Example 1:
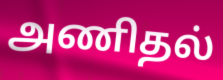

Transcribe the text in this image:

அணிதல்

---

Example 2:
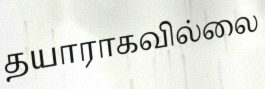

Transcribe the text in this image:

தயாராகவில்லை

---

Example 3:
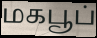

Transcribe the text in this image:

மகபூப்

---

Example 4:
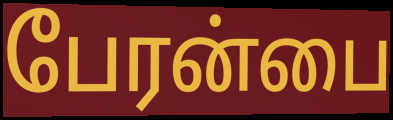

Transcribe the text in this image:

பேரன்பை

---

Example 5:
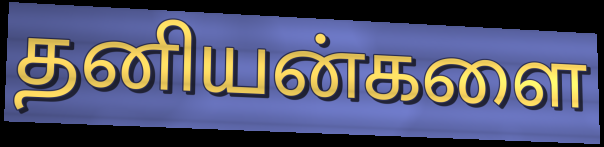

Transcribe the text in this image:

தனியன்களை